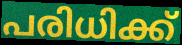
പരിധിക്ക്